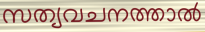
സത്യവചനത്താൽ